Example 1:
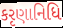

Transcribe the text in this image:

કરૃણાનિધિ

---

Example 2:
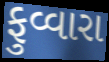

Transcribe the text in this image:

ફુવ્વારા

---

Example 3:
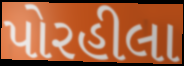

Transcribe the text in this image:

પોરહીલા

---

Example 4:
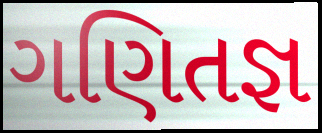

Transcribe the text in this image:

ગણિતજ્ઞ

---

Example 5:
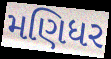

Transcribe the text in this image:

મણિધર